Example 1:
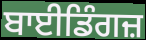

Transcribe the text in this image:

ਬਾਈਡਿੰਗਜ਼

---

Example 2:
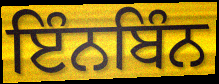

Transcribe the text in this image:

ਇੰਨਬਿੰਨ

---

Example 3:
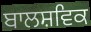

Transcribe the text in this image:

ਬਾਲਸ਼ਵਿਕ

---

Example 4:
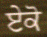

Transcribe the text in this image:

ਏਕੋ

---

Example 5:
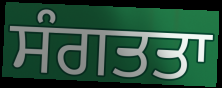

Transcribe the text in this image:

ਸੰਗਤਤਾ